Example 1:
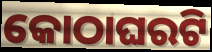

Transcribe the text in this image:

କୋଠାଘରଟି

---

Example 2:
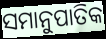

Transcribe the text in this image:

ସମାନୁପାତିକ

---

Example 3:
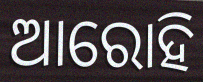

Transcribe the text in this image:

ଆରୋହି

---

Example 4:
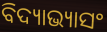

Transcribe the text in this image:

ବିଦ୍ୟାଭ୍ୟାସଂ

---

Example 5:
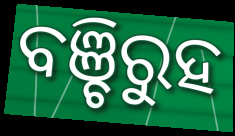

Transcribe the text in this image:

ବଞ୍ଚିରୁହ